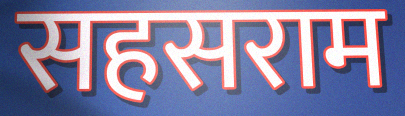
सहसराम